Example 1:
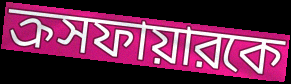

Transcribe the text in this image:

ক্রসফায়ারকে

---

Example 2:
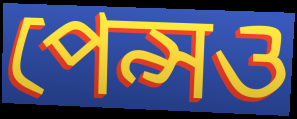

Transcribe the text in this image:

পেন্সও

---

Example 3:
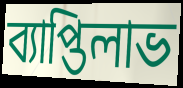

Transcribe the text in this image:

ব্যাপ্তিলাভ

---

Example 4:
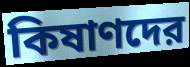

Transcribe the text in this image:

কিষাণদের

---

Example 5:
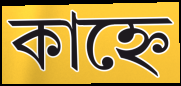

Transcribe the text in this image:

কাহ্নে